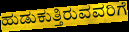
ಹುಡುಕುತ್ತಿರುವವರಿಗೆ